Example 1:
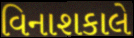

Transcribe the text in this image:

વિનાશકાલે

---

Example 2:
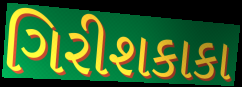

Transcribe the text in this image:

ગિરીશકાકા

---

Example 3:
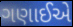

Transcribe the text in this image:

ગણાઈએ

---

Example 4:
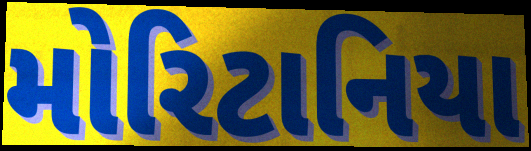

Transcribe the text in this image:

મોરિટાનિયા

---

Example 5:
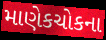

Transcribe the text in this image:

માણેકચોકના